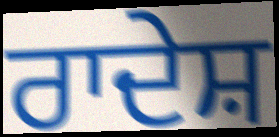
ਰਾਦੇਸ਼